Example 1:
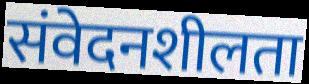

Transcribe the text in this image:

संवेदनशीलता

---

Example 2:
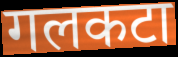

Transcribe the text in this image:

गलकटा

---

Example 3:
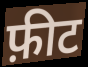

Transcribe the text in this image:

फ़ीट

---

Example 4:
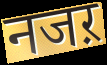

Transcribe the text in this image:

नजऱ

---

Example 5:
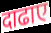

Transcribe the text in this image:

दाढाए